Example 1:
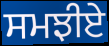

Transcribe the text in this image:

ਸਮਝੀਏ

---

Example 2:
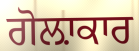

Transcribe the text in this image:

ਗੋਲ਼ਾਕਾਰ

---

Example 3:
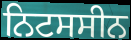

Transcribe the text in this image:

ਨਿਟਸਸੀਨ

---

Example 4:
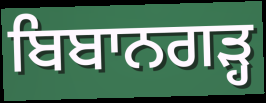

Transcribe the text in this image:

ਬਿਬਾਨਗੜ੍ਹ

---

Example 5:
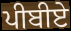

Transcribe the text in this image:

ਪੀਬੀਏ